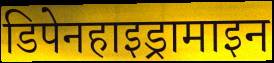
डिपेनहाइड्रामाइन